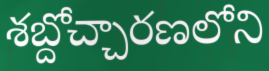
శబ్దోచ్చారణలోని